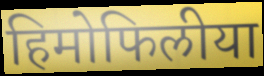
हिमोफिलीया